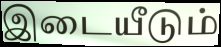
இடையீடும்